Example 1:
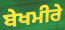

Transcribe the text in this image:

ਬੇਖਮੀਰੇ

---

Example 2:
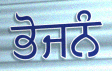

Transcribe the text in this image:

ਭੋਜਨੰ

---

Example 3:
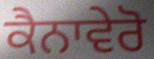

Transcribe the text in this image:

ਕੈਨਾਵੇਰੋ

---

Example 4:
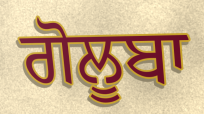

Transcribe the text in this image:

ਗੋਲੂਬਾ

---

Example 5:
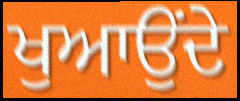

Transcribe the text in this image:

ਖੁਆਉਂਦੇ